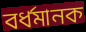
বর্ধমানক